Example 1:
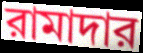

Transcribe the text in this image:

রামাদার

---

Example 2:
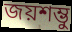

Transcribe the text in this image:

জয়শম্ভু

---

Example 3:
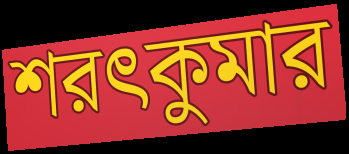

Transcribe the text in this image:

শরৎকুমার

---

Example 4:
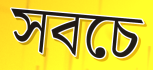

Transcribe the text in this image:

সবচে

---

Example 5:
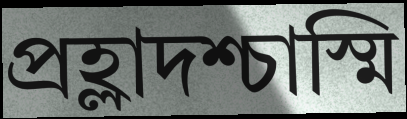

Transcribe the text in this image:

প্রহ্লাদশ্চাস্মি